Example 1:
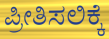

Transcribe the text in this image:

ಪ್ರೀತಿಸಲಿಕ್ಕೆ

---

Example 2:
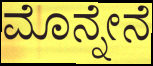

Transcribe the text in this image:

ಮೊನ್ನೇನೆ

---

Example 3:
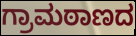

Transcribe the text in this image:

ಗ್ರಾಮಠಾಣದ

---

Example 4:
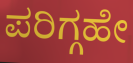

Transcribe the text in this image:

ಪರಿಗ್ಗಹೇ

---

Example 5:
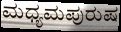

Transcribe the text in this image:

ಮಧ್ಯಮಪುರುಷ